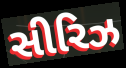
સીરિઝ